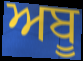
ਅਬੂ